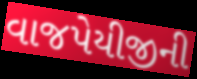
વાજપેયીજીની